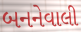
બનનેવાલી